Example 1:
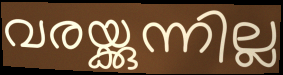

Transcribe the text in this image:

വരയ്ക്കുന്നില്ല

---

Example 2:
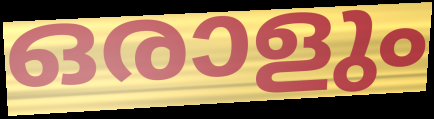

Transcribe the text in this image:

ഒരാളും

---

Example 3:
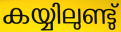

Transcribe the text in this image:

കയ്യിലുണ്ടു്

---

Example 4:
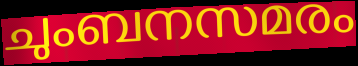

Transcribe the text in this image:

ചുംബനസമരം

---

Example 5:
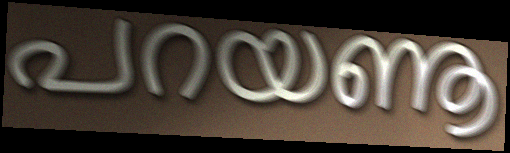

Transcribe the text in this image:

പറയണൂ